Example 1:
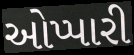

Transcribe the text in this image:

ઓપ્પારી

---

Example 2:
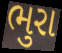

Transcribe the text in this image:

ભુરા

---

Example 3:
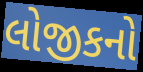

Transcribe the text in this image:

લોજીકનો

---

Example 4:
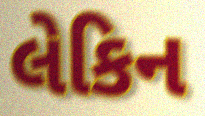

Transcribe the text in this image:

લેકિન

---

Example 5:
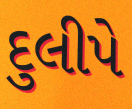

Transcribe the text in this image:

દુલીપે